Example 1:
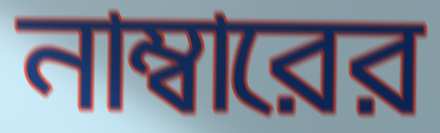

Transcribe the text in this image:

নাম্বারের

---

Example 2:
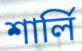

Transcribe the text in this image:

শার্লি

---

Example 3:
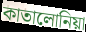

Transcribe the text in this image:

কাতালোনিয়া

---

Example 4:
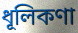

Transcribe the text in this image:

ধূলিকণা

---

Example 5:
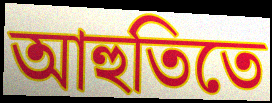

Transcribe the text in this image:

আহুতিতে